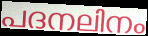
പദനലിനം